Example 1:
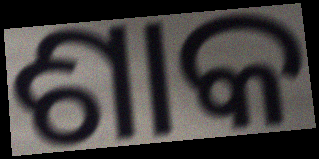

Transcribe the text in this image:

ଶାକ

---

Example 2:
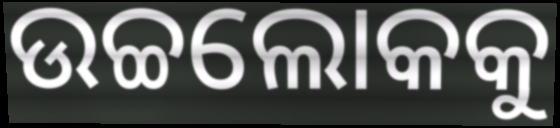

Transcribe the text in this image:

ଉଚ୍ଚଲୋକକୁ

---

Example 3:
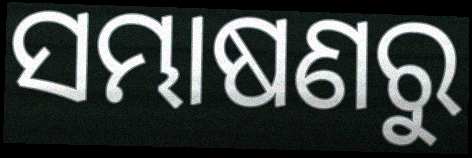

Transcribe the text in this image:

ସମ୍ଭାଷଣରୁ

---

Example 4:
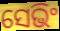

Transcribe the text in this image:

ସେଭିଂ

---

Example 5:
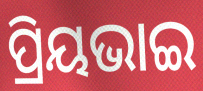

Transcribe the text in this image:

ପ୍ରିୟଭାଇ